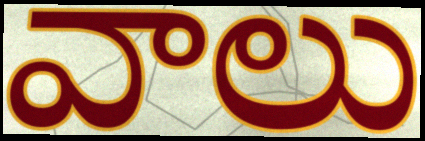
వాలు